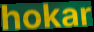
hokar